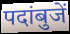
पदांबुजें